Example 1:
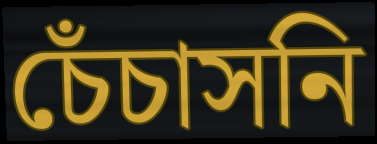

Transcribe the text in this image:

চেঁচাসনি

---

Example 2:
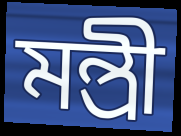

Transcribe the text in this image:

মন্ত্রী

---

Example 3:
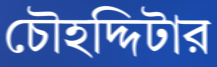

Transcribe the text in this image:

চৌহদ্দিটার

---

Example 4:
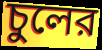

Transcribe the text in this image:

চুলের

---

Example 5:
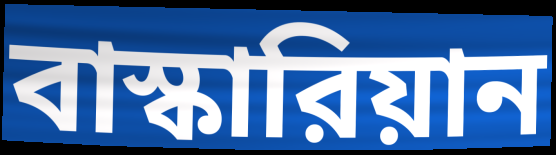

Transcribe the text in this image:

বাস্কারিয়ান